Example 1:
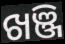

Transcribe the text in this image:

ଖଞ୍ଜି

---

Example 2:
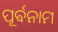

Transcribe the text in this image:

ପୂର୍ଵନାମ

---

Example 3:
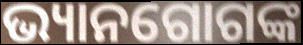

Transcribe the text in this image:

ଭ୍ୟାନଗୋଗଙ୍କ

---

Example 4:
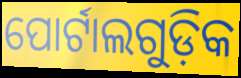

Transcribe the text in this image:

ପୋର୍ଟାଲଗୁଡ଼ିକ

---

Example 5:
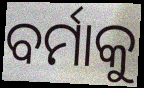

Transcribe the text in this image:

ବର୍ମାକୁ